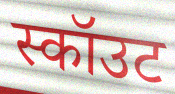
स्कॉउट